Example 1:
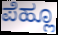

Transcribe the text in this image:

ಪೆಹ್ಲೂ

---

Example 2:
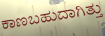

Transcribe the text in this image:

ಕಾಣಬಹುದಾಗಿತ್ತು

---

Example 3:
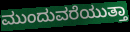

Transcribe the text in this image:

ಮುಂದುವರೆಯುತ್ತಾ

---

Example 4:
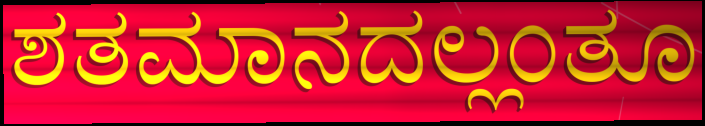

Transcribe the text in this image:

ಶತಮಾನದಲ್ಲಂತೂ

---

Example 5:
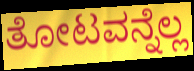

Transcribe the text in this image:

ತೋಟವನ್ನೆಲ್ಲ